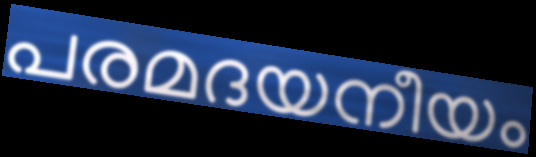
പരമദയനീയം